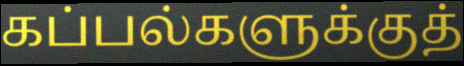
கப்பல்களுக்குத்